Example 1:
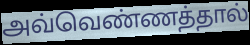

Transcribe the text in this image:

அவ்வெண்ணத்தால்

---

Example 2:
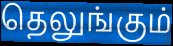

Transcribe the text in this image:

தெலுங்கும்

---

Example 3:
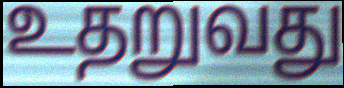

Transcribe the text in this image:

உதறுவது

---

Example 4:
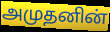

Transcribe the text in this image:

அமுதனின்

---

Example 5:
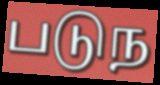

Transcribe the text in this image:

படுந